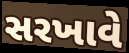
સરખાવે